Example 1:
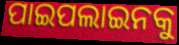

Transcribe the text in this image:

ପାଇପଲାଇନକୁ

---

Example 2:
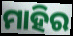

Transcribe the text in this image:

ମାହିର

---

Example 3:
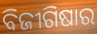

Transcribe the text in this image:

ବିଜୀଗିଷାର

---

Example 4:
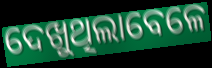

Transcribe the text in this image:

ଦେଖୁଥିଲାବେଳେ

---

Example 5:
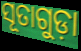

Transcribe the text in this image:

ସୂତାଗୁଡ଼ା